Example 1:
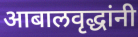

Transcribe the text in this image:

आबालवृद्धांनी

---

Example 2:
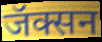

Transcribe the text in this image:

जॅक्सन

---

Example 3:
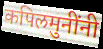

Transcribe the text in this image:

कपिलमुनींनी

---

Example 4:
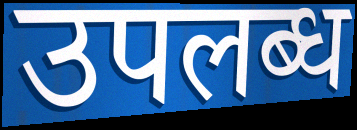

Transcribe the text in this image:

उपलब्ध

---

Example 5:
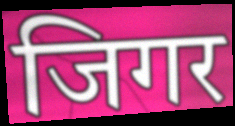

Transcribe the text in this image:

जिगर